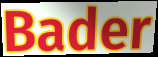
Bader